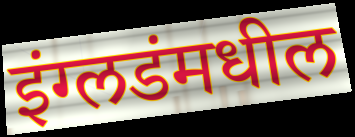
इंग्लडंमधील